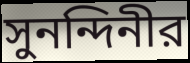
সুনন্দিনীর